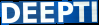
DEEPTI